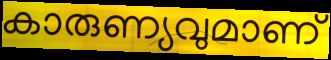
കാരുണ്യവുമാണ്